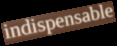
indispensable